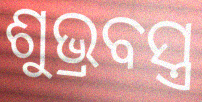
ଶୁଭ୍ରବସ୍ତ୍ର